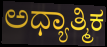
ಅಧ್ಯಾತ್ಮಿಕ